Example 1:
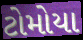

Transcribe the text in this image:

ટોમોયા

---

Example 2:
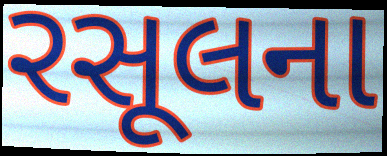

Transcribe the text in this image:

રસૂલના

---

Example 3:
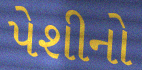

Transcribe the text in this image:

પેશીનો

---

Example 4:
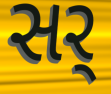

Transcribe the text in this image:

સર્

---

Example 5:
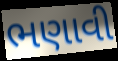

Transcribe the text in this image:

ભણાવી